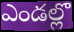
ఎండల్లొ